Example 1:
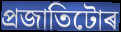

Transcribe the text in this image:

প্ৰজাতিটোৰ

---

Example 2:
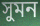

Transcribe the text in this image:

সুমন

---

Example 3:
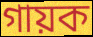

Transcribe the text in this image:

গায়ক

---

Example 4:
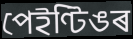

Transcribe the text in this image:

পেইণ্টিঙৰ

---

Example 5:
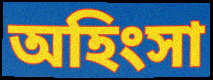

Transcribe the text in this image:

অহিংসা